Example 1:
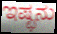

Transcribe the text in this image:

ಇಷ್ಟನು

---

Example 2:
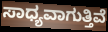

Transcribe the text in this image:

ಸಾಧ್ಯವಾಗುತ್ತಿವೆ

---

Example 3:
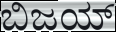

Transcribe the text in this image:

ಬಿಜಯ್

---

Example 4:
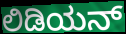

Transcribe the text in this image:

ಲಿಡಿಯನ್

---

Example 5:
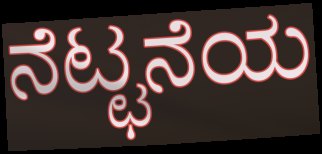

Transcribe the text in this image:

ನೆಟ್ಟನೆಯ